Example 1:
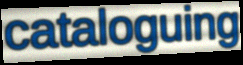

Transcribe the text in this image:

cataloguing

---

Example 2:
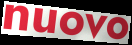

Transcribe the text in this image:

nuovo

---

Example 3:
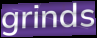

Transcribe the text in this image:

grinds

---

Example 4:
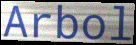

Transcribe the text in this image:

Arbol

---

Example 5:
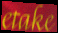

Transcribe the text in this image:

etake